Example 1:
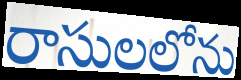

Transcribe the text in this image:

రాసులలోను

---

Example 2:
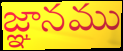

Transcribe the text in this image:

జ్ఞానము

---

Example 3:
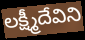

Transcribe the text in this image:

లక్ష్మీదేవిని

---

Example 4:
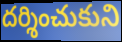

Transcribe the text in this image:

దర్శించుకుని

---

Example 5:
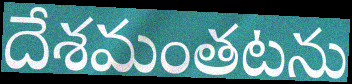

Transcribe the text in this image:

దేశమంతటను